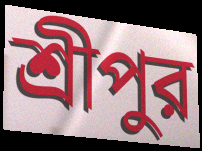
শ্রীপুর